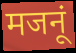
मजनूं